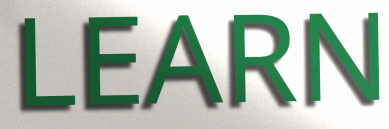
LEARN